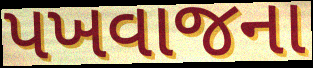
પખવાજના